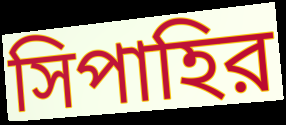
সিপাহির